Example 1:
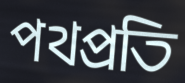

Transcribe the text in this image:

পথপ্রতি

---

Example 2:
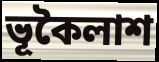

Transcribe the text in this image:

ভূকৈলাশ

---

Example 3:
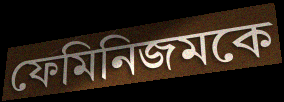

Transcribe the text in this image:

ফেমিনিজমকে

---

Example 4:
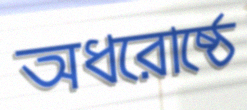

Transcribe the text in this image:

অধরোষ্ঠে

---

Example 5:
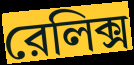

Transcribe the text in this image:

রেলিক্স